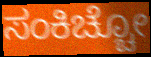
ಸಂಕಿಚ್ಚೋ